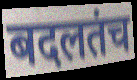
बदलतंच